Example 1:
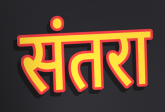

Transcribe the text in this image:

संतरा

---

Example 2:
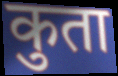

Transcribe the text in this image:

कुता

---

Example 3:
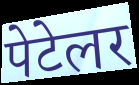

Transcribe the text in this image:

पेटेलर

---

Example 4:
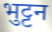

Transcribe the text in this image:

भुट्टन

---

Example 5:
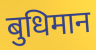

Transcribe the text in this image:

बुधिमान